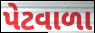
પેટવાળા